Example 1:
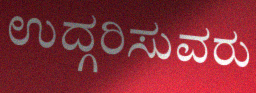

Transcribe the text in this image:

ಉದ್ಗರಿಸುವರು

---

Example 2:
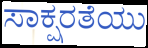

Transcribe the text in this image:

ಸಾಕ್ಷರತೆಯು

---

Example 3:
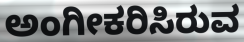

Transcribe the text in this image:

ಅಂಗೀಕರಿಸಿರುವ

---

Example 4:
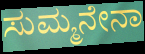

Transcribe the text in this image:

ಸುಮ್ಮನೇನಾ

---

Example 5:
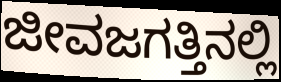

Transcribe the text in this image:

ಜೀವಜಗತ್ತಿನಲ್ಲಿ